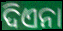
ଦିଏନା